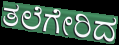
ತಲೆಗೇರಿದ